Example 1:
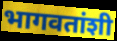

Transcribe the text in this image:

भागवतांशी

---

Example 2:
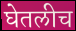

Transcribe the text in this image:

घेतलीच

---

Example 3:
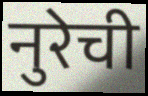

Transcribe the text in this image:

नुरेची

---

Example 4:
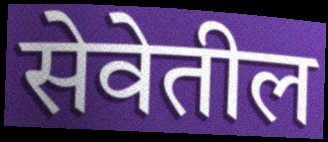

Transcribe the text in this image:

सेवेतील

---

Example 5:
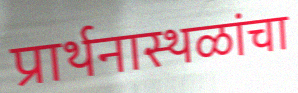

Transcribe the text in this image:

प्रार्थनास्थळांचा